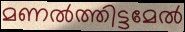
മണൽത്തിട്ടമേൽ